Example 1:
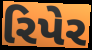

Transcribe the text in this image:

રિપેર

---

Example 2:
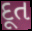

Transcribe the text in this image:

દૂત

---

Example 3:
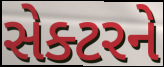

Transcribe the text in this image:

સેક્ટરને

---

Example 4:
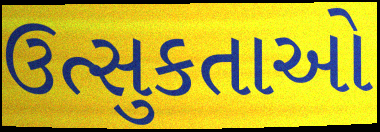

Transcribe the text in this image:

ઉત્સુકતાઓ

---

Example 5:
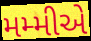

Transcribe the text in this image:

મમ્મીએ